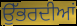
ਉੱਭਰਦੀਆਂ